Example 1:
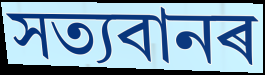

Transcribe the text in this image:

সত্যবানৰ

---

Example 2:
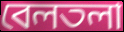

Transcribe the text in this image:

বেলতলা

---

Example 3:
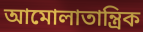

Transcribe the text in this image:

আমোলাতান্ত্ৰিক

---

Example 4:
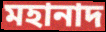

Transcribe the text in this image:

মহানাদ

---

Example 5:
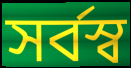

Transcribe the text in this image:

সৰ্বস্ব